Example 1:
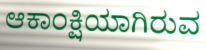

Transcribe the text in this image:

ಆಕಾಂಕ್ಷಿಯಾಗಿರುವ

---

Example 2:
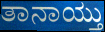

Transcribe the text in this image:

ತಾನಾಯ್ತು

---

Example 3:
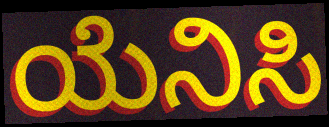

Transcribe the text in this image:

ಯೆನಿಸಿ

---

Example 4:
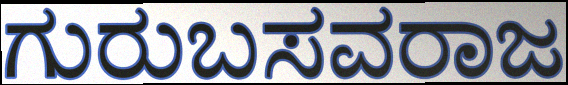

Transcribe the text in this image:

ಗುರುಬಸವರಾಜ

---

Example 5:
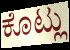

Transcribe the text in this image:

ಕೊಟ್ಲು